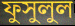
ফুসুলুল